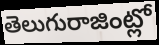
తెలుగురాజింట్లో